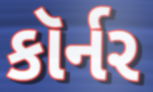
કૉર્નર